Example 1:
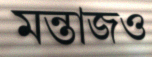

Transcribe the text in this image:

মন্তাজও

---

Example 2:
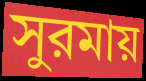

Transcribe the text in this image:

সুরমায়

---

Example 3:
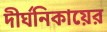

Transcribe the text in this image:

দীর্ঘনিকায়ের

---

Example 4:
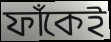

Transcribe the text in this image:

ফাঁকেই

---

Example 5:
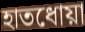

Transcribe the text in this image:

হাতধোয়া